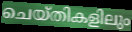
ചെയ്തികളിലും